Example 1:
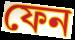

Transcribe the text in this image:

ফেন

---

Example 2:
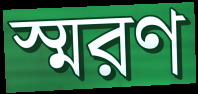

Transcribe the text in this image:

স্মরণ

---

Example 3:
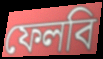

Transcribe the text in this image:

ফেলবি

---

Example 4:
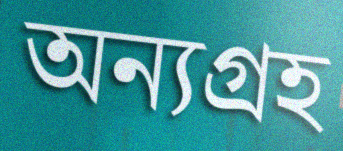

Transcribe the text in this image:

অন্যগ্রহ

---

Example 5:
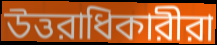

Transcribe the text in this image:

উত্তরাধিকারীরা